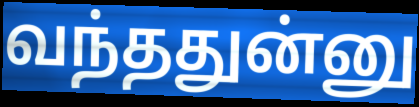
வந்ததுன்னு